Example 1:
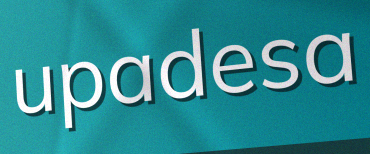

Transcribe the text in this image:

upadesa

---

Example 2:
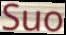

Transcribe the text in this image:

Suo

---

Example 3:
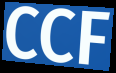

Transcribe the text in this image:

CCF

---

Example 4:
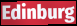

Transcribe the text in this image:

Edinburg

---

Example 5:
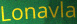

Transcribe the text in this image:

Lonavla